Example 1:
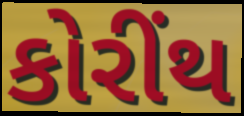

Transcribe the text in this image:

કોરીંથ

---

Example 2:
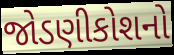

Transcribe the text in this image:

જોડણીકોશનો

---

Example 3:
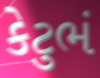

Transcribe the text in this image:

કેટુભં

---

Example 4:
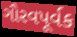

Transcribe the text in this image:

ગૌરવપૂર્વક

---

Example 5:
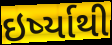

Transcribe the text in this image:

ઇર્ષ્યાથી